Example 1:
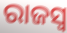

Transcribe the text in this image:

ରାଜସ୍ୱ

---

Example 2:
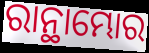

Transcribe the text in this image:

ରାନ୍ଥାମ୍ଭୋର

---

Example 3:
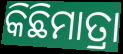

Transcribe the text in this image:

କିଛିମାତ୍ରା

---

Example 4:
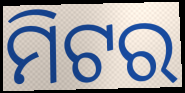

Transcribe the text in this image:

ମିଟର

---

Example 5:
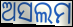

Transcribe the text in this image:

ଅସଲମ